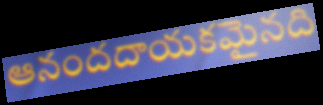
ఆనందదాయకమైనది